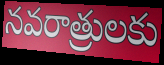
నవరాత్రులకు